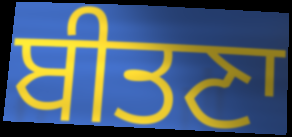
ਬੀਤਣਾ